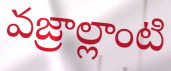
వజ్రాల్లాంటి